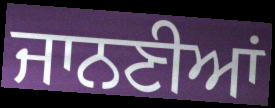
ਜਾਨਣੀਆਂ